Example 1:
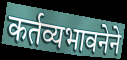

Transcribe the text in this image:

कर्तव्यभावनेने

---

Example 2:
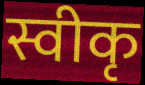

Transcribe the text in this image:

स्वीकृ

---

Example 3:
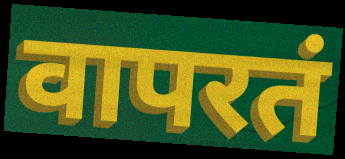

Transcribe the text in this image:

वापरतं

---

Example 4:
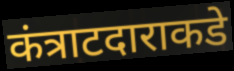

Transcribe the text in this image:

कंत्राटदाराकडे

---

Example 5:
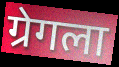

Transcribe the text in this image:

ग्रेगला